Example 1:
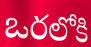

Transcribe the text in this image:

ఒరలోకి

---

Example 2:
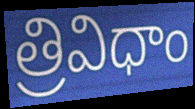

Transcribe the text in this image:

త్రివిధాం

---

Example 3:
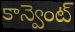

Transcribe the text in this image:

కాన్వెంట్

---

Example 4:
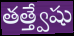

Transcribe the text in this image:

తత్త్వేషు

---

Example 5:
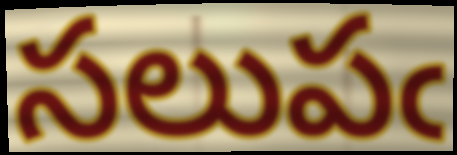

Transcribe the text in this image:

సలుపఁ